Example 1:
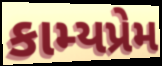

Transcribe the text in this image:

કામ્યપ્રેમ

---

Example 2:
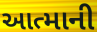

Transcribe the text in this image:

આત્માની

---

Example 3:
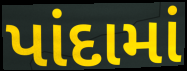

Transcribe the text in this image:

પાંદામાં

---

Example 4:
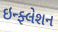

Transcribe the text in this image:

ઇન્ફ્લેશન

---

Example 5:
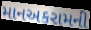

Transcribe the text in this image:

માનઅકરામની